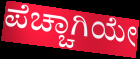
ಪೆಚ್ಚಾಗಿಯೇ